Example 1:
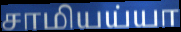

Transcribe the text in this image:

சாமியய்யா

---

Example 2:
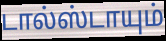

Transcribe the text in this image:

டால்ஸ்டாயும்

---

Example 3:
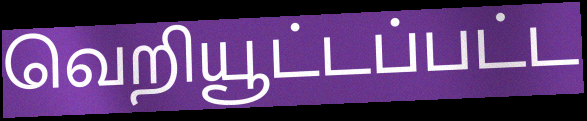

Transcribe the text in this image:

வெறியூட்டப்பட்ட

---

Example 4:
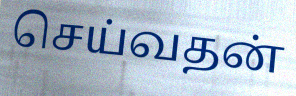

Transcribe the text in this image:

செய்வதன்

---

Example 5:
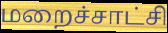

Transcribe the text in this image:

மறைச்சாட்சி